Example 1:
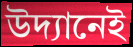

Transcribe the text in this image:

উদ্যানেই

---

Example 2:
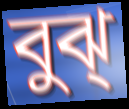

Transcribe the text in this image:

বুঝ্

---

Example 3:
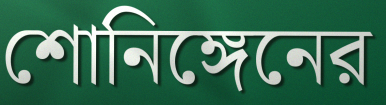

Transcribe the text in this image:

শোনিঙ্গেনের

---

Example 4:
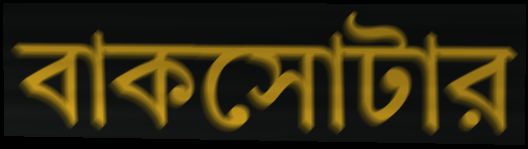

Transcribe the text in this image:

বাকসোটার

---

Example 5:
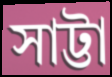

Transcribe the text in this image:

সাট্টা